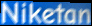
Niketan